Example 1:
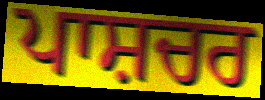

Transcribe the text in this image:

ਪਾਸ਼ਚਰ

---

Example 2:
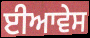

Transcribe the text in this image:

ਈਆਵੇਸ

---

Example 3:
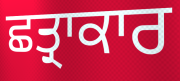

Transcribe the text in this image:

ਛਤ੍ਰਾਕਾਰ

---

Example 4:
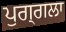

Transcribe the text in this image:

ਪੁਗ੍ਗਲਾ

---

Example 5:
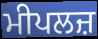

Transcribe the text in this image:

ਮੀਪਲਜ਼